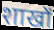
शाखों